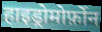
हाइड्रोमोर्फ़ोन